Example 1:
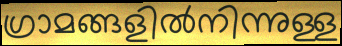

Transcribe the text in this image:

ഗ്രാമങ്ങളിൽനിന്നുള്ള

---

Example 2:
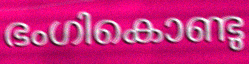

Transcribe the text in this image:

ഭംഗികൊണ്ടു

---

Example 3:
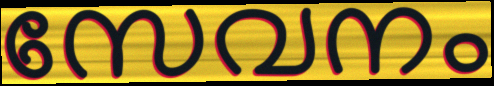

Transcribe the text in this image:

സേവനം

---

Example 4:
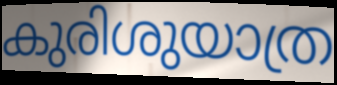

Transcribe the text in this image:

കുരിശുയാത്ര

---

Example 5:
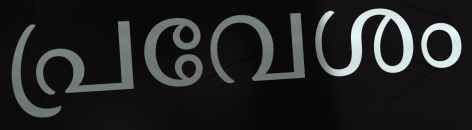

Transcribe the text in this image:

പ്രവേശം